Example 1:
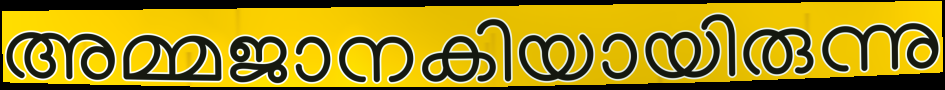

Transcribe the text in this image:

അമ്മജാനകിയായിരുന്നു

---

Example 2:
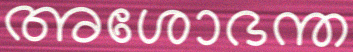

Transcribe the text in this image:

അശോഭന്ത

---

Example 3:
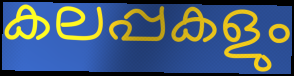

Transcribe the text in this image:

കലപ്പകളും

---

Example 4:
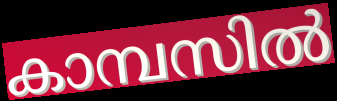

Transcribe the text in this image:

കാമ്പസിൽ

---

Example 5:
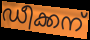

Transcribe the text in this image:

ഡീക്കന്